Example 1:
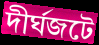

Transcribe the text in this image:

দীর্ঘজটে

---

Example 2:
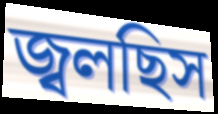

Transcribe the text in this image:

জ্বলছিস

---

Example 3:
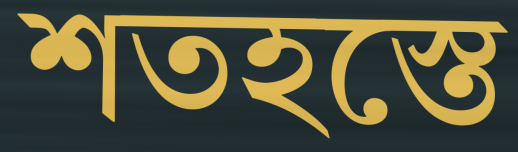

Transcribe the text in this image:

শতহস্তে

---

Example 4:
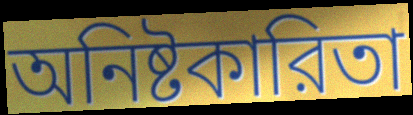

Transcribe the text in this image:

অনিষ্টকারিতা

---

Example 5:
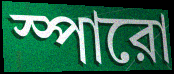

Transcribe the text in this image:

স্পারো